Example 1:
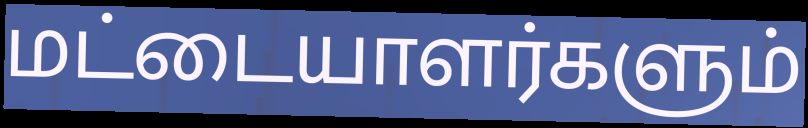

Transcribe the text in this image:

மட்டையாளர்களும்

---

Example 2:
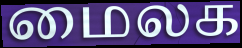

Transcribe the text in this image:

மைலக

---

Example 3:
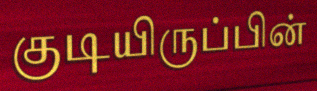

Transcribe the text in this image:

குடியிருப்பின்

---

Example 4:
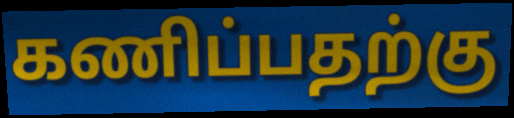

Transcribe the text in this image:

கணிப்பதற்கு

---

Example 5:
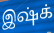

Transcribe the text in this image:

இஷ்க்